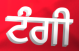
ਟੰਗੀ